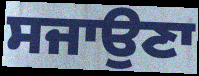
ਸਜਾਉਣਾ